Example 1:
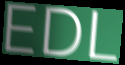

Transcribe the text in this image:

EDL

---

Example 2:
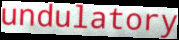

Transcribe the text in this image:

undulatory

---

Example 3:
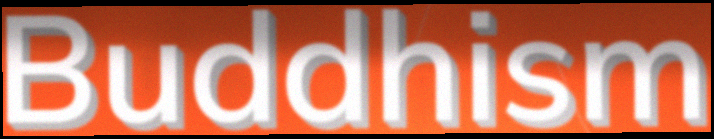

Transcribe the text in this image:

Buddhism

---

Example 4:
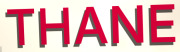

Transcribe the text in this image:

THANE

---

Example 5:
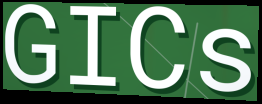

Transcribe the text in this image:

GICs